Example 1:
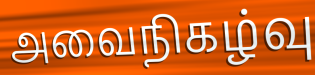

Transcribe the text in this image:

அவைநிகழ்வு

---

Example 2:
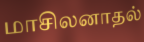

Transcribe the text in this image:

மாசிலனாதல்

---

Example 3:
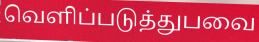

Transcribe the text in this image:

வெளிப்படுத்துபவை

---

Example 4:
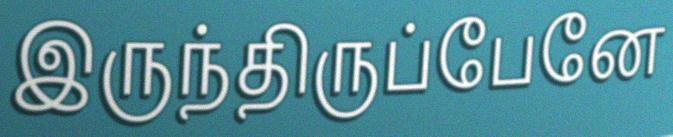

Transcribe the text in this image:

இருந்திருப்பேனே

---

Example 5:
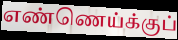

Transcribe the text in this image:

எண்ணெய்க்குப்